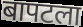
बापटला